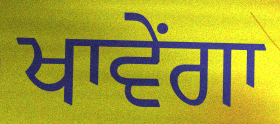
ਖਾਵੇਂਗਾ